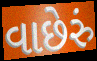
વાછેરું